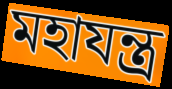
মহাযন্ত্র